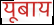
यूबाय